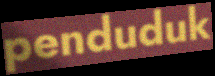
penduduk